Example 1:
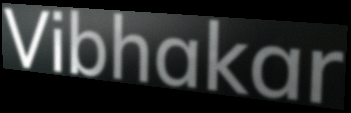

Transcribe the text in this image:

Vibhakar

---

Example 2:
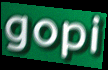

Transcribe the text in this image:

gopi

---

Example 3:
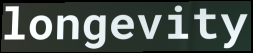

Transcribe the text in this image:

longevity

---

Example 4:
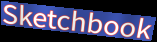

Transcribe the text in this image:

Sketchbook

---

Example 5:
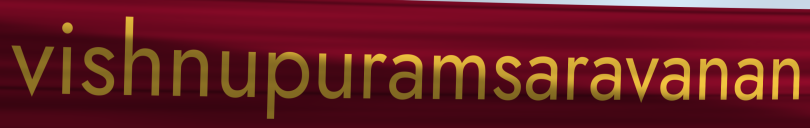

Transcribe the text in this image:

vishnupuramsaravanan